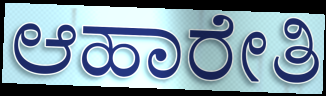
ಆಹಾರೇತಿ